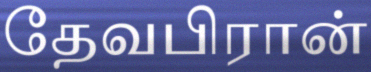
தேவபிரான்